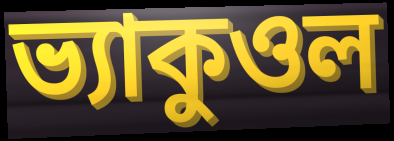
ভ্যাকুওল